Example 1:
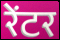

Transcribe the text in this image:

रेंटर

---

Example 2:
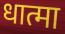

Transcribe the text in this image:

धात्मा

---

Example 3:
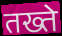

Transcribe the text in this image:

तख्ते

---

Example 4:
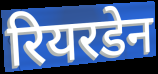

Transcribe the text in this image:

रियरडेन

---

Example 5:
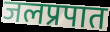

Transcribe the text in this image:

जलप्रपात